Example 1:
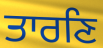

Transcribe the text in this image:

ਤਾਰਣਿ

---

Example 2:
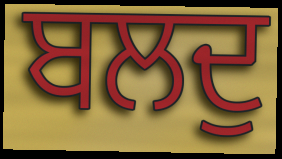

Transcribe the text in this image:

ਬਲਦੁ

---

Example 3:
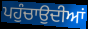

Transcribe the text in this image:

ਪਹੁੰਚਾਉਦੀਆਂ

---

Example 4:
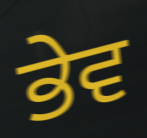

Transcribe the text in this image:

ਭੇਵ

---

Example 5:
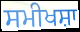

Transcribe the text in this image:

ਸਮੀਖਸ਼ਾ